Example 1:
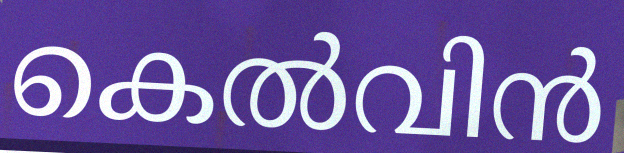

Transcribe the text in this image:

കെൽവിൻ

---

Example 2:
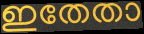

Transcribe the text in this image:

ഇതേതാ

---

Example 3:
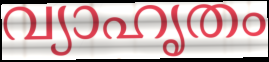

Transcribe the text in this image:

വ്യാഹൃതം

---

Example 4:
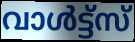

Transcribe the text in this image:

വാൾട്ട്സ്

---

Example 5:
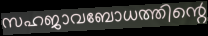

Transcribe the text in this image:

സഹജാവബോധത്തിന്റെ